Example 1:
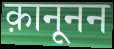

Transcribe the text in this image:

क़ानूनन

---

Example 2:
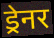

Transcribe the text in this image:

ड्रेनर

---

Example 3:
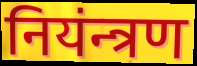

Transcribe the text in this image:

नियंन्त्रण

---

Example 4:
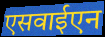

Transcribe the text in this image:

एसवाईएन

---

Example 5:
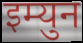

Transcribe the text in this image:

इम्युन